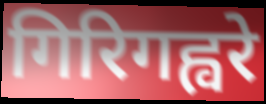
गिरिगह्वरे